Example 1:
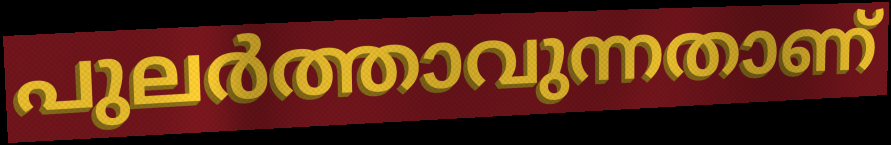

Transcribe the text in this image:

പുലർത്താവുന്നതാണ്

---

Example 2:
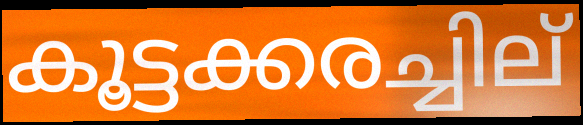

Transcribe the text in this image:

കൂട്ടക്കരച്ചില്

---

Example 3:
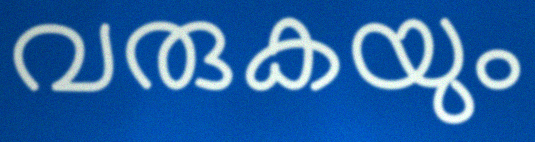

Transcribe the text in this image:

വരുകയും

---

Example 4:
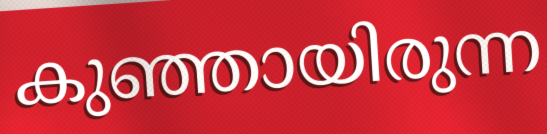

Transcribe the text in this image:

കുഞ്ഞായിരുന്ന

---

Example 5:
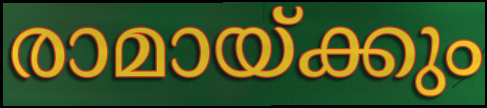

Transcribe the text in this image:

രാമായ്ക്കും